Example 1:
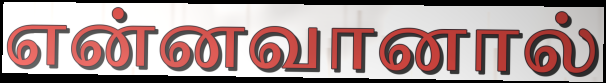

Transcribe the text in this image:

என்னவானால்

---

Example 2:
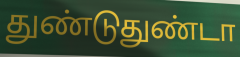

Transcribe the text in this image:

துண்டுதுண்டா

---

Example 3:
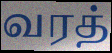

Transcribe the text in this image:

வரத்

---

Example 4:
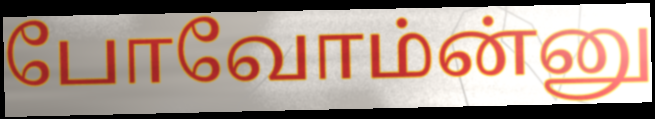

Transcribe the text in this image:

போவோம்ன்னு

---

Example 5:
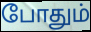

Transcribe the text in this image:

போதும்